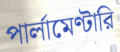
পার্লামেণ্টারি